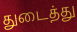
துடைத்து